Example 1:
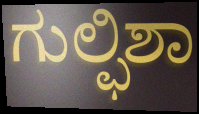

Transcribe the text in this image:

ಗುಲ್ಫಿಶಾ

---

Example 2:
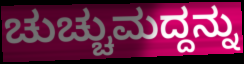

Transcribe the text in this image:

ಚುಚ್ಚುಮದ್ದನ್ನು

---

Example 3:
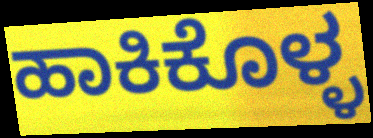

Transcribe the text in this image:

ಹಾಕಿಕೊಳ್ಳ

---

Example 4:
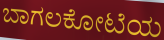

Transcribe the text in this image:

ಬಾಗಲಕೋಟೆಯ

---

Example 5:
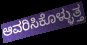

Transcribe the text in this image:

ಆವರಿಸಿಕೊಳ್ಳುತ್ತ